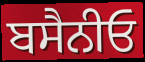
ਬਸੈਨੀਓ